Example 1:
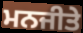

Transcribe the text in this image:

ਮਨਜੀਤੇ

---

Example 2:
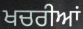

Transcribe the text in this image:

ਖਚਰੀਆਂ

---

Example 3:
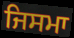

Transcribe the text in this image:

ਜਿਸਮਾ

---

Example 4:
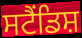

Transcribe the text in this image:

ਸਟੈਂਡਿਸ਼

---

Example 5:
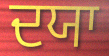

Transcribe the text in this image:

ਦਯਾ